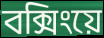
বক্সিংয়ে